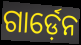
ଗାର୍ଡ଼େନ